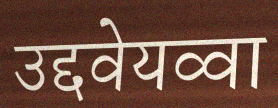
उद्दवेयव्वा